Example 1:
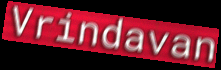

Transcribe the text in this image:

Vrindavan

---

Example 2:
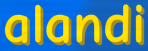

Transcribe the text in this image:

alandi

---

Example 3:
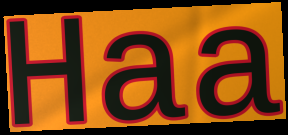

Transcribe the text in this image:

Haa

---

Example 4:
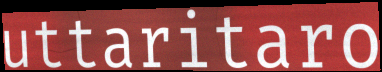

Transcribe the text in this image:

uttaritaro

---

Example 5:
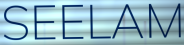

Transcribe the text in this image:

SEELAM